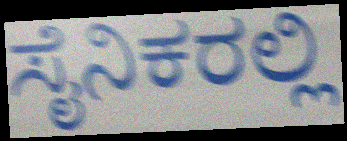
ಸೈನಿಕರಲ್ಲಿ